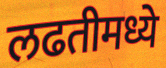
लढतीमध्ये